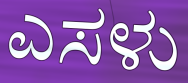
ಎಸಳು